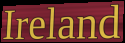
Ireland